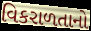
વિકરાળતાનો